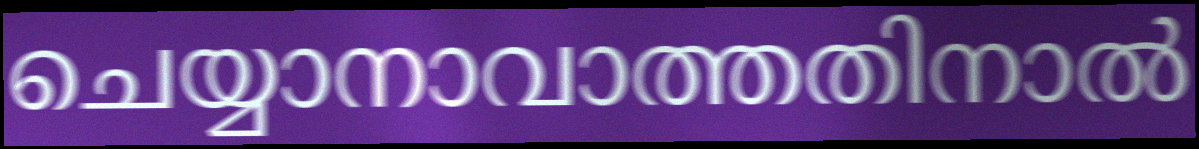
ചെയ്യാനാവാത്തതിനാൽ